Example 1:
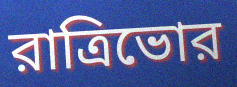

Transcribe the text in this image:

রাত্রিভোর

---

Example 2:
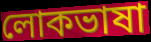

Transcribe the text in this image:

লোকভাষা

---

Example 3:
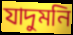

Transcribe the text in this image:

যাদুমনি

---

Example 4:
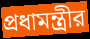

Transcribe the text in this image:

প্রধামন্ত্রীর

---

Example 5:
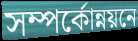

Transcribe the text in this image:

সম্পর্কোন্নয়নে